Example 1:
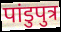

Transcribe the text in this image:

पांडुपुत्र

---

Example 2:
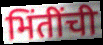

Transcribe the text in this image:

भिंतींची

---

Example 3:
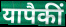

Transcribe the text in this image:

यापैकीं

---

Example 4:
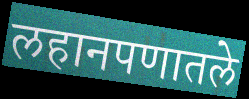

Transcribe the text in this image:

लहानपणातले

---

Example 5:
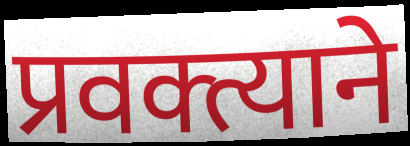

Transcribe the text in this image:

प्रवक्‍त्याने